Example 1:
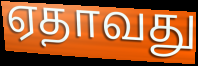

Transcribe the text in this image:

ஏதாவது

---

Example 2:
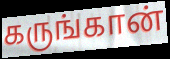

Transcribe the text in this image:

கருங்கான்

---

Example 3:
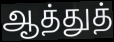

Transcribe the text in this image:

ஆத்துத்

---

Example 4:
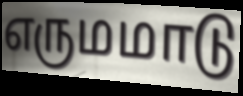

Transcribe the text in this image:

எருமமாடு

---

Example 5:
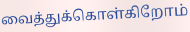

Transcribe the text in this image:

வைத்துக்கொள்கிறோம்